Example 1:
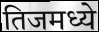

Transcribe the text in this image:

तिजमध्ये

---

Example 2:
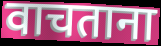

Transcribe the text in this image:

वाचताना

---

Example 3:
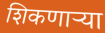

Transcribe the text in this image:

शिकणार्‍या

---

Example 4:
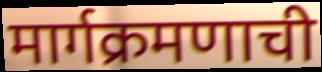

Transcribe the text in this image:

मार्गक्रमणाची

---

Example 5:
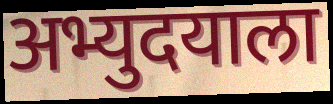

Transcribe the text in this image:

अभ्युदयाला